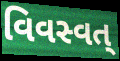
વિવસ્વત્